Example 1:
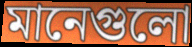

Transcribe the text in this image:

মানেগুলো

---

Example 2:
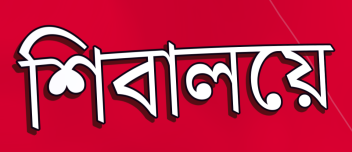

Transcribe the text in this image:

শিবালয়ে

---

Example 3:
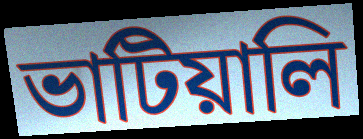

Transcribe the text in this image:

ভাটিয়ালি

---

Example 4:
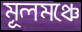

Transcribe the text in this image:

মূলমঞ্চে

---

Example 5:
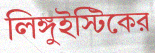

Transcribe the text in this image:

লিঙ্গুইস্টিকের